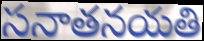
సనాతనయతి